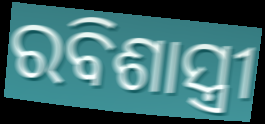
ରବିଶାସ୍ତ୍ରୀ